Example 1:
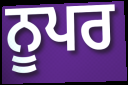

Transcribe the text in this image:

ਨੂਪਰ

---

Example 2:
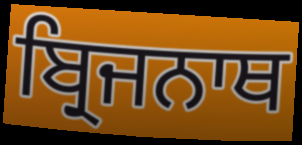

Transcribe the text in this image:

ਬ੍ਰਿਜਨਾਥ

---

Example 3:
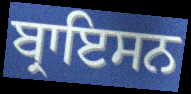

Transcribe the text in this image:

ਬ੍ਰਾਇਸਨ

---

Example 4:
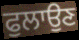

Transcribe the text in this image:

ਫੁਲਾਉਣ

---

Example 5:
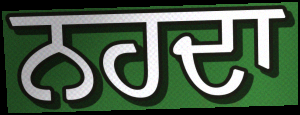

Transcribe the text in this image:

ਨਹਦਾ